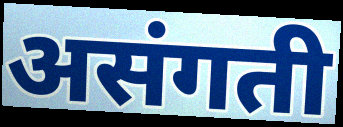
असंगती